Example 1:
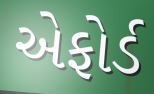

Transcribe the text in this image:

એફોર્ડ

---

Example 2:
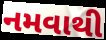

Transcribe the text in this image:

નમવાથી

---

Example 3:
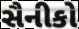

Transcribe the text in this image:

સૈનીકો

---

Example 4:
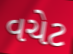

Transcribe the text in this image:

વચેટ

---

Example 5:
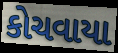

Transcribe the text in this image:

કોચવાયા